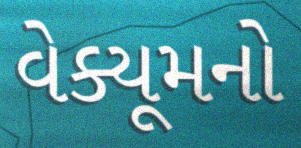
વેક્યૂમનો